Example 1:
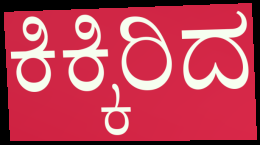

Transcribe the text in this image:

ಕಿಕ್ಕಿರಿದ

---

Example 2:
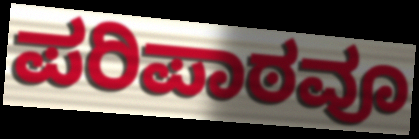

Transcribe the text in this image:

ಪರಿಪಾಠವೂ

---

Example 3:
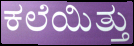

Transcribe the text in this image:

ಕಲೆಯಿತ್ತು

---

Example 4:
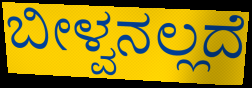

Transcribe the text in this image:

ಬೀಳ್ವನಲ್ಲದೆ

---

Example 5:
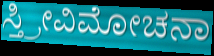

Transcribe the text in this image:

ಸ್ತ್ರೀವಿಮೋಚನಾ